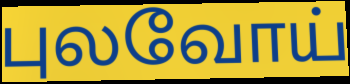
புலவோய்